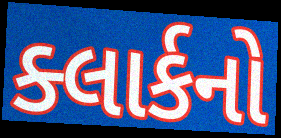
ક્લાર્કનો